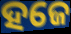
ହଜେ